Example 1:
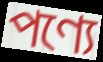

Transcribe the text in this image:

পণ্যে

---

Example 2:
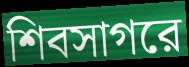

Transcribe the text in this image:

শিবসাগরে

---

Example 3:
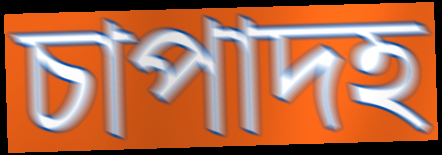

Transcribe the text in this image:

চাপাদহ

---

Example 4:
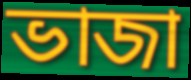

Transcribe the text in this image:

ভাজা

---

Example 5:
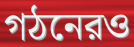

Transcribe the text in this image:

গঠনেরও